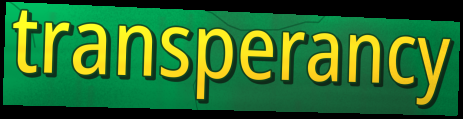
transperancy